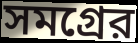
সমগ্রের